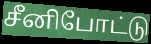
சீனிபோட்டு